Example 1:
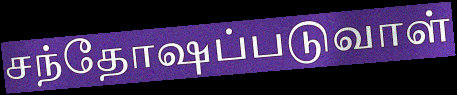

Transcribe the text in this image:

சந்தோஷப்படுவாள்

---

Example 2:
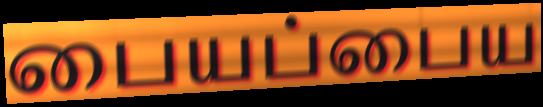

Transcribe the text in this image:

பையப்பைய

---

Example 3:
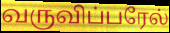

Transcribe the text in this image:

வருவிப்பரேல்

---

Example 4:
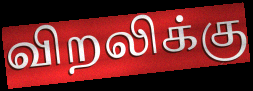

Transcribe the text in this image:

விறலிக்கு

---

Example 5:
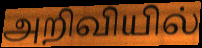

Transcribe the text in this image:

அறிவியில்